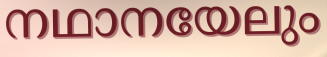
നഥാനയേലും